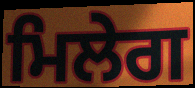
ਮਿਲੇਗ